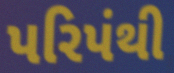
પરિપંથી